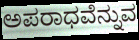
ಅಪರಾಧವೆನ್ನುವ